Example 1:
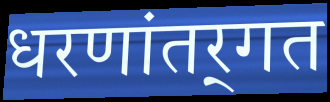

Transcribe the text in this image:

धरणांतर्गत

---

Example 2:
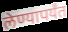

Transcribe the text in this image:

लेण्यापर्यंत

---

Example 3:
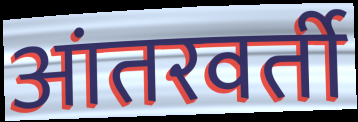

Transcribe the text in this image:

आंतरवर्ती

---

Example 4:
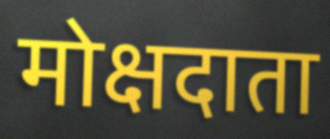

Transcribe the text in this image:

मोक्षदाता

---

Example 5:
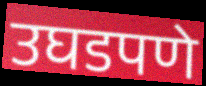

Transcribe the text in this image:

उघडपणे